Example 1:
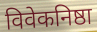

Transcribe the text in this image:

विवेकनिष्ठा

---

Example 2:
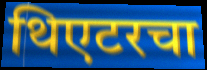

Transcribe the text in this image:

थिएटरचा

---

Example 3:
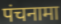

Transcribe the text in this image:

पंचनामा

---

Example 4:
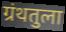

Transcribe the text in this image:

ग्रंथतुला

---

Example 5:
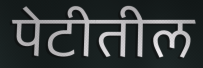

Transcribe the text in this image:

पेटीतील